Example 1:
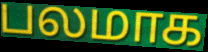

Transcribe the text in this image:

பலமாக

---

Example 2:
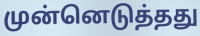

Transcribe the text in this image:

முன்னெடுத்தது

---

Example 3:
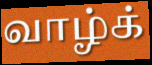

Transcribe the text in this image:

வாழ்க்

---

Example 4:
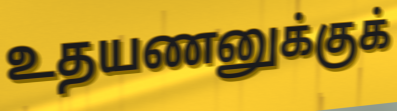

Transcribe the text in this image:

உதயணனுக்குக்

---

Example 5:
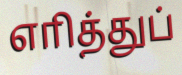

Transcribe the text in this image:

எரித்துப்